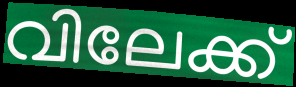
വിലേക്ക്